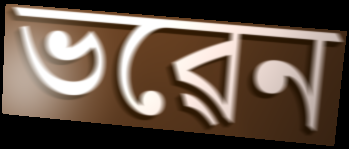
ভৱেন